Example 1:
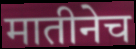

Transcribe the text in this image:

मातीनेच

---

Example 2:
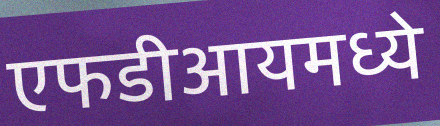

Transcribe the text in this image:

एफडीआयमध्ये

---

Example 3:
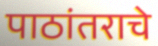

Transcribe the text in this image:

पाठांतराचे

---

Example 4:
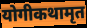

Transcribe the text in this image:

योगीकथामृत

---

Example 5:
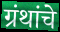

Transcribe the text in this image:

ग्रंथांचे